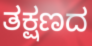
ತಕ್ಷಣದ